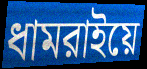
ধামরাইয়ে